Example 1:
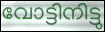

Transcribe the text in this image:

വോട്ടിനിട്ടു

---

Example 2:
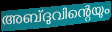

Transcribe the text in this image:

അബ്ദുവിന്റെയും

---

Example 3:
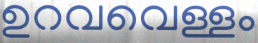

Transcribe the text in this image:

ഉറവവെള്ളം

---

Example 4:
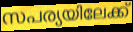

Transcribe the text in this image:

സപര്യയിലേക്ക്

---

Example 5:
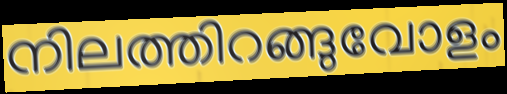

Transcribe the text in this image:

നിലത്തിറങ്ങുവോളം